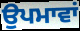
ਉਪਮਾਵਾਂ